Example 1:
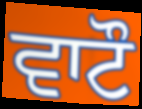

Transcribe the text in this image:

ਵਾਟੌ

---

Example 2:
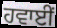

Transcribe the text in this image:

ਹਵਾਈਂ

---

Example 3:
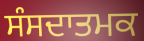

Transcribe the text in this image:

ਸੰਸਦਾਤਮਕ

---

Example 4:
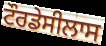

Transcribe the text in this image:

ਟੌਰਡੇਸੀਲਾਸ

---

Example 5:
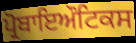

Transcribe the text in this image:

ਪ੍ਰੋਬਾਇਔਟਿਕਸ